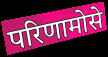
परिणामोसे